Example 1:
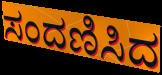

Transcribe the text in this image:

ಸಂದಣಿಸಿದ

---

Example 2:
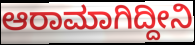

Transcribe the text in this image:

ಆರಾಮಾಗಿದ್ದೀನಿ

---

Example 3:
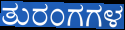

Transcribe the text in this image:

ತುರಂಗಗಳ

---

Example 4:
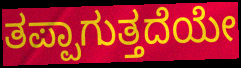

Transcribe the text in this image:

ತಪ್ಪಾಗುತ್ತದೆಯೇ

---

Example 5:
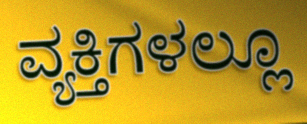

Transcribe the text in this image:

ವ್ಯಕ್ತಿಗಳಲ್ಲೂ